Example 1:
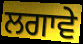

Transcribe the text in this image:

ਲਗਾਵੇ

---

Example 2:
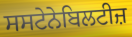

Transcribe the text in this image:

ਸਸਟੇਨੇਬਿਲਟੀਜ਼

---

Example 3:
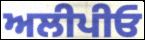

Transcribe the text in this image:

ਅਲੀਪੀਓ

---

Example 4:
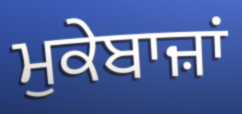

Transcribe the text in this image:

ਮੁਕੇਬਾਜ਼ਾਂ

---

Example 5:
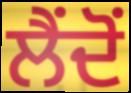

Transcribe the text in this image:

ਲੈਂਦੋਂ